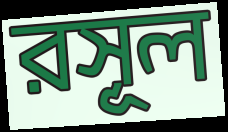
রসূল